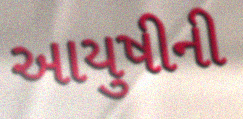
આયુષીની